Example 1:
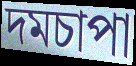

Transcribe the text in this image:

দমচাপা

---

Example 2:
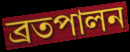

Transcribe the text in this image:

ব্রতপালন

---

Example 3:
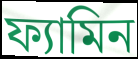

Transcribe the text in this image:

ফ্যামিন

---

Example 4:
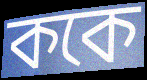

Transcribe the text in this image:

ককে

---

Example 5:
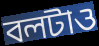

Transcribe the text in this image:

বলটাও